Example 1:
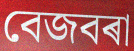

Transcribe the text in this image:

বেজবৰা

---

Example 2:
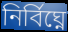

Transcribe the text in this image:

নিৰ্বিঘ্নে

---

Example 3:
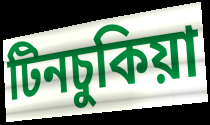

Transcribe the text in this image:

টিনচুকিয়া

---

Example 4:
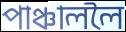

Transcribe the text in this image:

পাঞ্চাললৈ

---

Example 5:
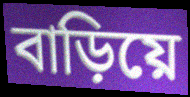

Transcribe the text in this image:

বাড়িয়ে